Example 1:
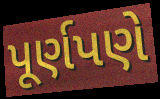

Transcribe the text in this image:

પૂર્ણપણે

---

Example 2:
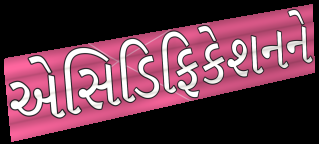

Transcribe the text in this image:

એસિડિફિકેશનને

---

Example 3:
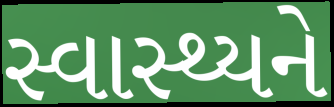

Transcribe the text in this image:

સ્વાસ્થ્યને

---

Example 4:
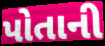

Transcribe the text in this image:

પોતાની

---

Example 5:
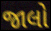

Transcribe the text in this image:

જાલો